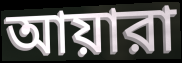
আয়ারা